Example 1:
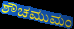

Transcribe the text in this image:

ಶೌಚಮುಮಂ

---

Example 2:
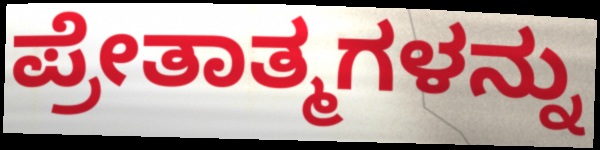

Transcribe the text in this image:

ಪ್ರೇತಾತ್ಮಗಳನ್ನು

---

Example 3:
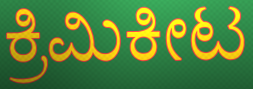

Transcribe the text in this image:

ಕ್ರಿಮಿಕೀಟ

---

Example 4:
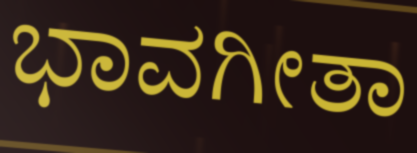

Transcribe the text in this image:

ಭಾವಗೀತಾ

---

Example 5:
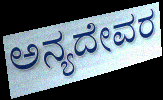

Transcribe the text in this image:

ಅನ್ಯದೇವರ